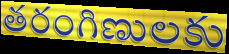
తరంగిణులకు